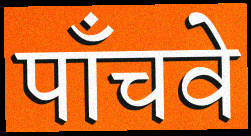
पाँचवे